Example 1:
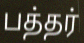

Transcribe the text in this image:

பத்தர்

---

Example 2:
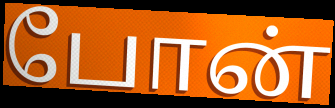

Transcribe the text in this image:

போன்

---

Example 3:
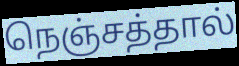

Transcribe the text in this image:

நெஞ்சத்தால்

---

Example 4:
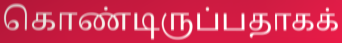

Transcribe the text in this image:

கொண்டிருப்பதாகக்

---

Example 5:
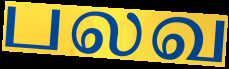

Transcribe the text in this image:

பலவ